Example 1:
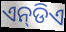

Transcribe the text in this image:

ଏନ୍‌ଡିଏ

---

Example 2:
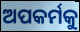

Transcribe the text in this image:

ଅପକର୍ମକୁ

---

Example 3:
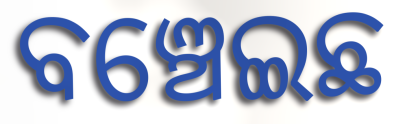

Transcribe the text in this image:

ବଞ୍ଚେଇଛ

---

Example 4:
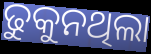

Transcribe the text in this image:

ଢୁକୁନଥିଲା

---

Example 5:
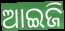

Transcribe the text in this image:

ଆଇଜି